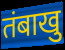
तंबाखु